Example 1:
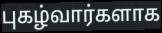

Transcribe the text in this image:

புகழ்வார்களாக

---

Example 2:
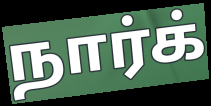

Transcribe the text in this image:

நார்க்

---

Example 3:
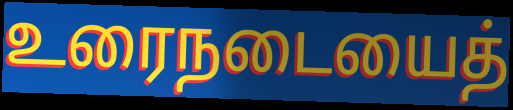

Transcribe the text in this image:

உரைநடையைத்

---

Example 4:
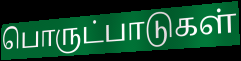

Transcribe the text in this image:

பொருட்பாடுகள்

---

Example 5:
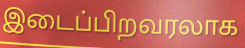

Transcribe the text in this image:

இடைப்பிறவரலாக